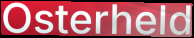
Osterheld